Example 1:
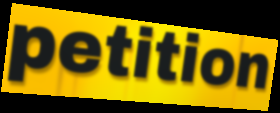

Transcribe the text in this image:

petition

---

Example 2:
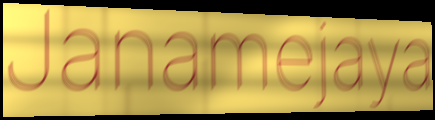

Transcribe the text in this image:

Janamejaya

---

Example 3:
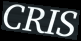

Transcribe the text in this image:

CRIS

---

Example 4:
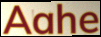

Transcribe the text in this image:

Aahe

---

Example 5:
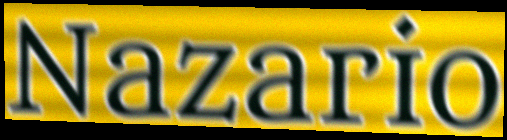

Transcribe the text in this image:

Nazario